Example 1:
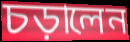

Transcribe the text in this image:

চড়ালেন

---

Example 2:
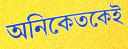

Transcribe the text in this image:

অনিকেতকেই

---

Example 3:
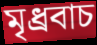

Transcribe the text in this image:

মৃধ্রবাচ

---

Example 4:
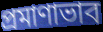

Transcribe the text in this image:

প্রমাণাভাব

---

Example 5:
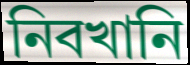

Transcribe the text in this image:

নিবখানি